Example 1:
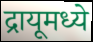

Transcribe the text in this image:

द्रायूमध्ये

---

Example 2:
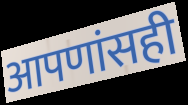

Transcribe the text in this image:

आपणांसही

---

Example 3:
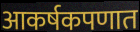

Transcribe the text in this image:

आकर्षकपणात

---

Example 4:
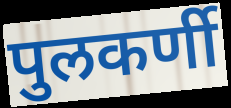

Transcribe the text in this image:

पुलकर्णी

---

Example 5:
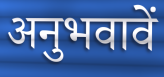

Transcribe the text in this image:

अनुभवावें